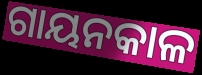
ଗାୟନକାଳ